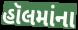
હૉલમાંના